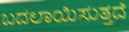
ಬದಲಾಯಿಸುತ್ತದೆ